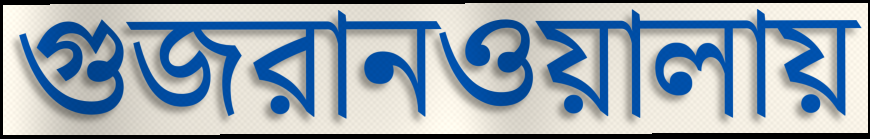
গুজরানওয়ালায়